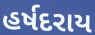
હર્ષદરાય